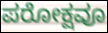
ಪರೋಕ್ಷವೂ